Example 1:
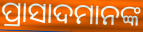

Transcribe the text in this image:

ପ୍ରାସାଦମାନଙ୍କ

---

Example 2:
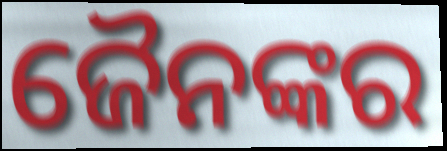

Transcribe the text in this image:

ଜୈନଙ୍କର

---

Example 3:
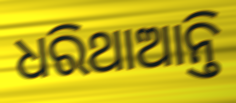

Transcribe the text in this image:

ଧରିଥାଆନ୍ତି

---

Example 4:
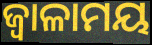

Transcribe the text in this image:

ଜ୍ୱାଳାମୟ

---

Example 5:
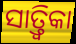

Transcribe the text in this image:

ସାତ୍ତ୍ୱିକା